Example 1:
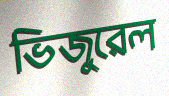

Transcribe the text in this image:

ভিজুৱেল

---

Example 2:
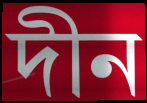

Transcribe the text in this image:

দীন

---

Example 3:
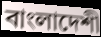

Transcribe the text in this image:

বাংলাদেশী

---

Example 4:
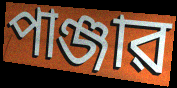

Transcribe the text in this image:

পাঞ্জাৱ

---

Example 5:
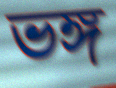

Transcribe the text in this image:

ভঙ্গ